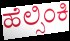
ಹೆಲ್ಸಿಂಕಿ